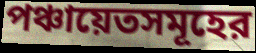
পঞ্চায়েতসমূহের